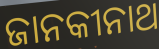
ଜାନକୀନାଥ